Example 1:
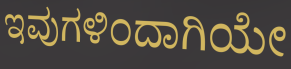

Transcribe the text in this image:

ಇವುಗಳಿಂದಾಗಿಯೇ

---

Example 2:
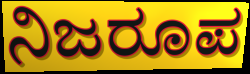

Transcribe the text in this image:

ನಿಜರೂಪ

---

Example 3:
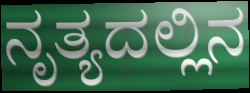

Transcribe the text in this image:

ನೃತ್ಯದಲ್ಲಿನ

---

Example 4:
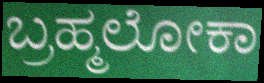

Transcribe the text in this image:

ಬ್ರಹ್ಮಲೋಕಾ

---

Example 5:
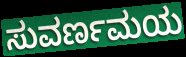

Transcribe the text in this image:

ಸುವರ್ಣಮಯ